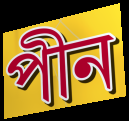
পীন